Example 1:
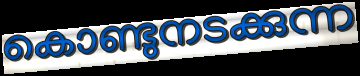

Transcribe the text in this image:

കൊണ്ടുനടക്കുന്ന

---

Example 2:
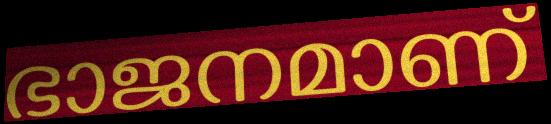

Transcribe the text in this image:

ഭാജനമാണ്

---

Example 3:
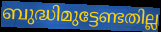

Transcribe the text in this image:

ബുദ്ധിമുട്ടേണ്ടതില്ല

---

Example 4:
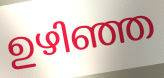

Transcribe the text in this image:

ഉഴിഞ്ഞ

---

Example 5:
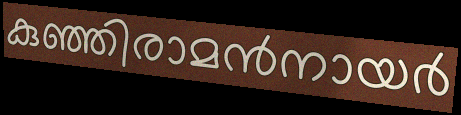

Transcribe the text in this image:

കുഞ്ഞിരാമൻനായർ